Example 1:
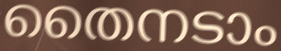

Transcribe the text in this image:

തൈനടാം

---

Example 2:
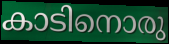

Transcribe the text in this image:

കാടിനൊരു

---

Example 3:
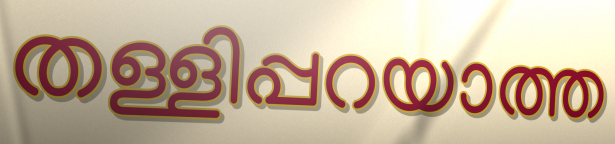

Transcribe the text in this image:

തള്ളിപ്പറയാത്ത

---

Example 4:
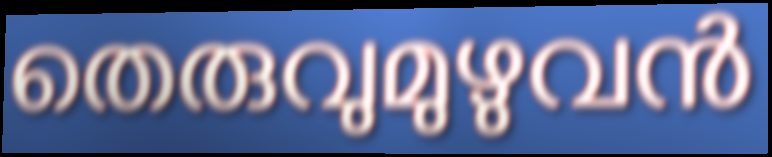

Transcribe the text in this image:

തെരുവുമുഴുവൻ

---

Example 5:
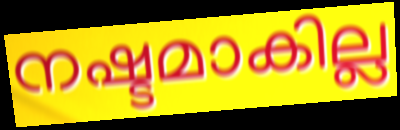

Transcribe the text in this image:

നഷ്ടമാകില്ല